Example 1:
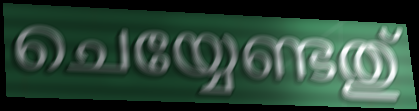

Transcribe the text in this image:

ചെയ്യേണ്ടതു്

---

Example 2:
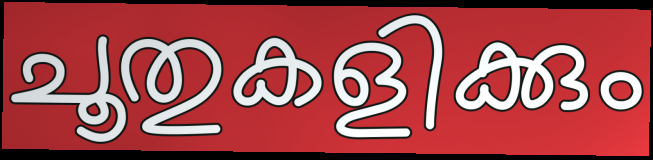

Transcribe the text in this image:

ചൂതുകളിക്കും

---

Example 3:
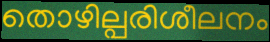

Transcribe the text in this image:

തൊഴില്പരിശീലനം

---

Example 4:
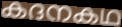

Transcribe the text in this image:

കദനകഥ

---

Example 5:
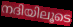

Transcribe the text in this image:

നദിയിലൂടെ